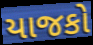
યાજકો